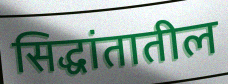
सिद्धांतातील